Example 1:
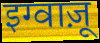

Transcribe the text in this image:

इग्वाज़ू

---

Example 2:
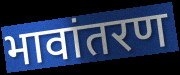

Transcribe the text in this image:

भावांतरण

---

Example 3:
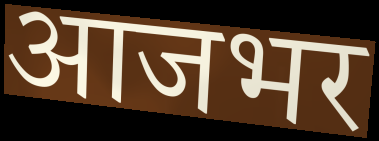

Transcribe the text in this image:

आजभर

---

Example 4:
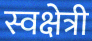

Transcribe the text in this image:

स्वक्षेत्री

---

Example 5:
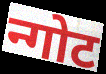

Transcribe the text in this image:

न्गोट